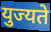
युज्यते